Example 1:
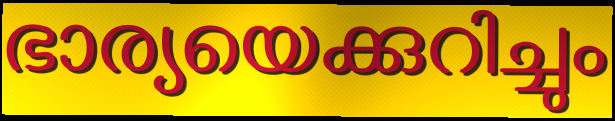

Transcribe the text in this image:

ഭാര്യയെക്കുറിച്ചും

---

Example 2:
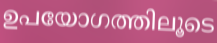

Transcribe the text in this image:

ഉപയോഗത്തിലൂടെ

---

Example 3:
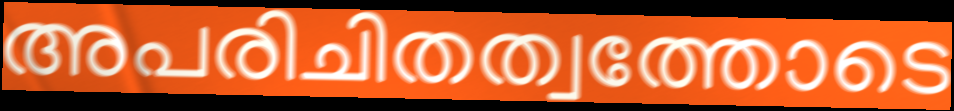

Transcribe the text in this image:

അപരിചിതത്വത്തോടെ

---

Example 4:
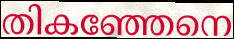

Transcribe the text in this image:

തികഞ്ഞേനെ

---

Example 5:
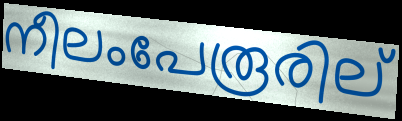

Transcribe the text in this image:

നീലംപേരൂരില്